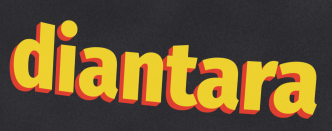
diantara